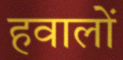
हवालों